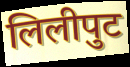
लिलीपुट